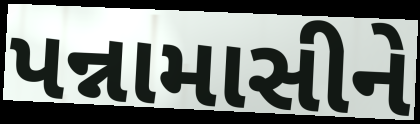
પન્નામાસીને